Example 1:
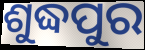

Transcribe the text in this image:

ଶୁଦ୍ଧପୁର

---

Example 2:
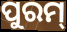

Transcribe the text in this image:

ପୁରମ୍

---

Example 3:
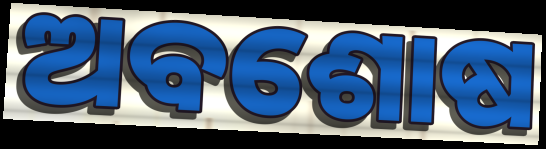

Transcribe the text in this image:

ଅବଶୋଷ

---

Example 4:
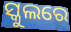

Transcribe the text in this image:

ସ୍କୁଲରେ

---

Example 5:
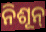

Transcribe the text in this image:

ନିଶୂନ୍